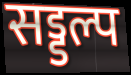
सड्डल्प